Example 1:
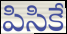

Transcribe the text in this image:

పిసికే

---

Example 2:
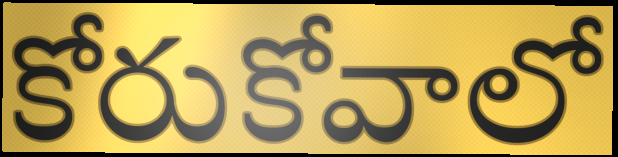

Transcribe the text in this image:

కోరుకోవాలో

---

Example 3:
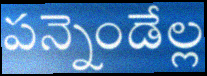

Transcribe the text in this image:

పన్నెండేల్ల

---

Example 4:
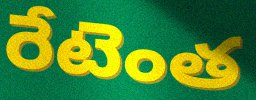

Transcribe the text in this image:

రేటెంత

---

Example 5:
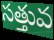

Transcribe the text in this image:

సత్తువ